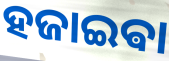
ହଜାଇଵା